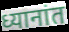
ध्यानांत